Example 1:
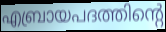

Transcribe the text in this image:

എബ്രായപദത്തിന്റെ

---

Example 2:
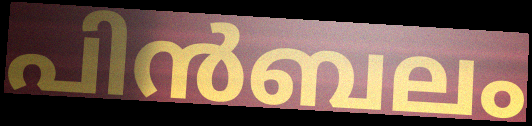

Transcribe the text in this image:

പിൻബലം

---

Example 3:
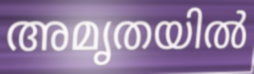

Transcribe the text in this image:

അമൃതയിൽ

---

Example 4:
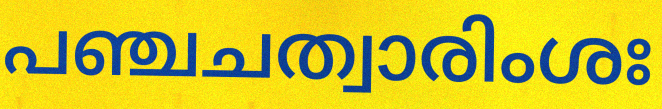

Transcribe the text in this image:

പഞ്ചചത്വാരിംശഃ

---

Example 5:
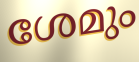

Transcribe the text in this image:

ശേമും